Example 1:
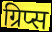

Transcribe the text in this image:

ग्रिप्स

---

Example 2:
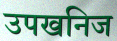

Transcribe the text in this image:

उपखनिज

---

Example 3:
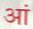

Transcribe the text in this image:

आं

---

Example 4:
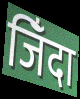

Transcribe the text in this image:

जिँदा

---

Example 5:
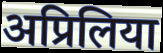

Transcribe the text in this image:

अप्रिलिया